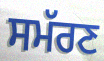
ਸਮੱਰਣ